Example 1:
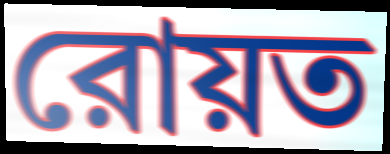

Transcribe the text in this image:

রোয়ত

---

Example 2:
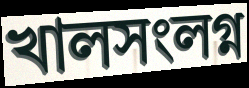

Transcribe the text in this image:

খালসংলগ্ন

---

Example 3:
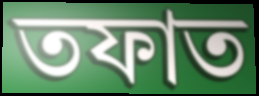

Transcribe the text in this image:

তফাত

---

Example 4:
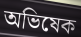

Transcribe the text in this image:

অভিষেক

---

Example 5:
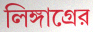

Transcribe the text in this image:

লিঙ্গাগ্রের